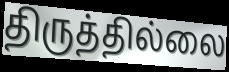
திருத்தில்லை